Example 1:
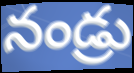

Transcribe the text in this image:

నండ్రు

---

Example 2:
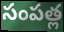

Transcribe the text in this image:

సంపత్ల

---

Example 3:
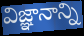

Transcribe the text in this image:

విజ్ఞానాన్ని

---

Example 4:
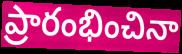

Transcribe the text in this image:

ప్రారంభించినా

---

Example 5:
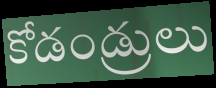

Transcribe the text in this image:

కోడండ్రులు